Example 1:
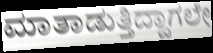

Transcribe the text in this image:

ಮಾತಾಡುತ್ತಿದ್ದಾಗಲೇ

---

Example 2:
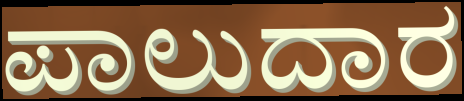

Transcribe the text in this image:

ಪಾಲುದಾರ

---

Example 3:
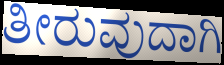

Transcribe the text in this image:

ತೀರುವುದಾಗಿ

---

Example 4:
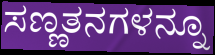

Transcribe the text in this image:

ಸಣ್ಣತನಗಳನ್ನೂ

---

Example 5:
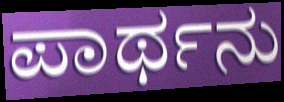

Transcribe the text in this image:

ಪಾರ್ಥನು